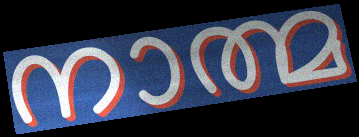
നാത്മ